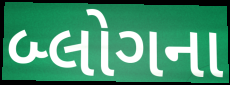
બ્લોગના